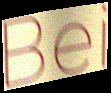
Bei